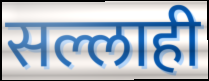
सल्लाही